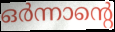
ഒർന്നാന്റെ